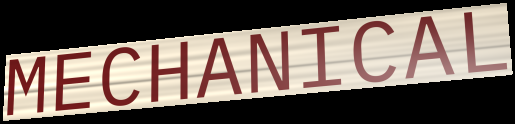
MECHANICAL